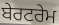
ਬੇਰਟਰੇਮ